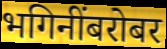
भगिनींबरोबर